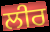
ਲੀਰ